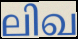
ലിഖ